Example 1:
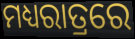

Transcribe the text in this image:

ମଧ୍ୟରାତ୍ରରେ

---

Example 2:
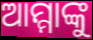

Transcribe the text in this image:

ଆମ୍ମାଙ୍କୁ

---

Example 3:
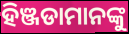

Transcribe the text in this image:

ହିଞ୍ଜଡାମାନଙ୍କୁ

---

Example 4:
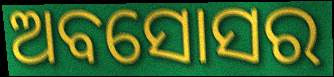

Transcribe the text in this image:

ଅବସୋସର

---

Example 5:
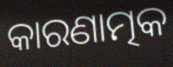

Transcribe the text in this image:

କାରଣାତ୍ମକ